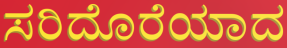
ಸರಿದೊರೆಯಾದ